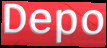
Depo